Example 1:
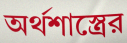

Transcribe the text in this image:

অর্থশাস্ত্রের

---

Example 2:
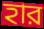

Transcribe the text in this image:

হার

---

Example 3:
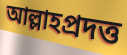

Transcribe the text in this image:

আল্লাহপ্রদত্ত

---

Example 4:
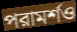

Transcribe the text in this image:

পরামর্শও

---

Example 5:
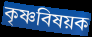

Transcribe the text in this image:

কৃষ্ণবিষয়ক